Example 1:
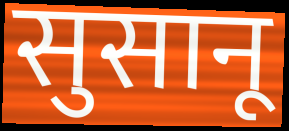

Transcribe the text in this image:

सुसानू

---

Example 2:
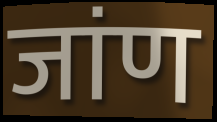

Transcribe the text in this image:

जांण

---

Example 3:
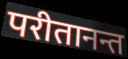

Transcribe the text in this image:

परीतानन्त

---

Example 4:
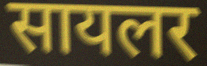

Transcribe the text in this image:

सायलर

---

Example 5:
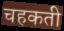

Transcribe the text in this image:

चहकती